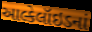
આલ્કેલૉઇડનાં